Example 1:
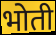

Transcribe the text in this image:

भोती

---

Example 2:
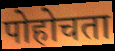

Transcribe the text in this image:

पोहोचता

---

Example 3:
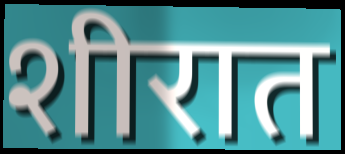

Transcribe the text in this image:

शीरात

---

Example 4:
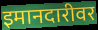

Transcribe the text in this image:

इमानदारीवर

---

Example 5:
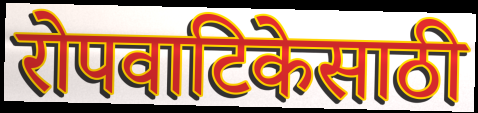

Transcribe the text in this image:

रोपवाटिकेसाठी